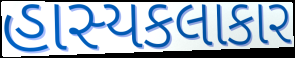
હાસ્યકલાકાર